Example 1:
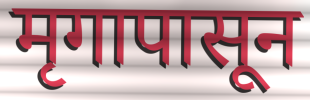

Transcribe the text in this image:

मृगापासून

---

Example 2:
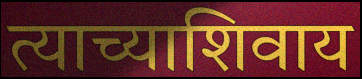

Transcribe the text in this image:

त्याच्याशिवाय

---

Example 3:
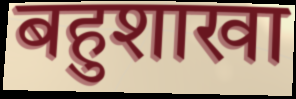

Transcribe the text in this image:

बहुशाखा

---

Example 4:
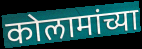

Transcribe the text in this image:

कोलामांच्या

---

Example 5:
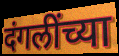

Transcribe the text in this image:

दंगलींच्या